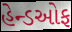
હેન્ડઓફ